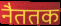
नैततक